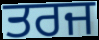
ਤਰਜ